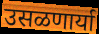
उसळणार्या